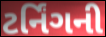
ટર્નિંગની